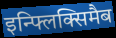
इन्फ्लिक्सिमैब